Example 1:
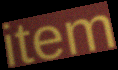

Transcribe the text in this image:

item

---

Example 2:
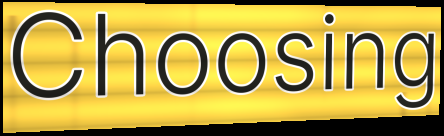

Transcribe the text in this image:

Choosing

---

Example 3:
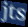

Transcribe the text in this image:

jts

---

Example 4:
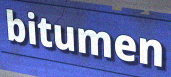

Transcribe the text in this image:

bitumen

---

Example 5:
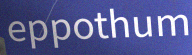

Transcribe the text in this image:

eppothum